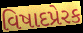
વિષાદપ્રેરક